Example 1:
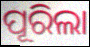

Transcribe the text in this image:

ପୂରିଲା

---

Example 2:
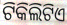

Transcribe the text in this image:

ଟିକିଲିଟିଏ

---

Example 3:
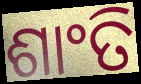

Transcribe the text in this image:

ଶାଂତି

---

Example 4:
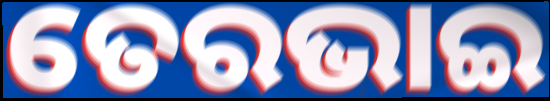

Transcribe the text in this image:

ତେରଭାଇ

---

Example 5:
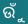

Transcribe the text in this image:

ଉୁଁ